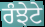
ਰੰਝੇਟੇ